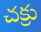
చక్రు